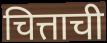
चित्ताची